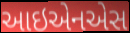
આઇએનએસ